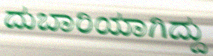
ದುಬಾರಿಯಾಗಿದ್ದು